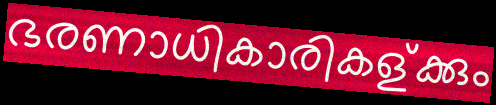
ഭരണാധികാരികള്ക്കും